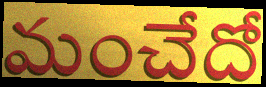
మంచేదో